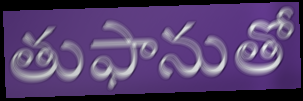
తుఫానుతో